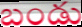
బండు